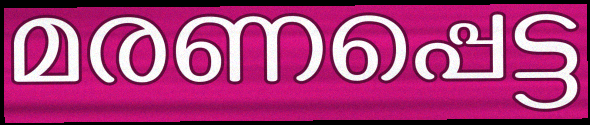
മരണപ്പെട്ട